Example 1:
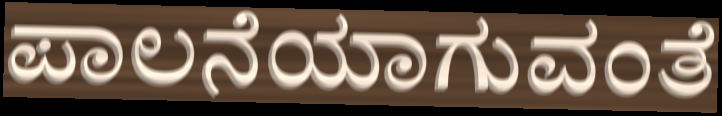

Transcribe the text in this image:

ಪಾಲನೆಯಾಗುವಂತೆ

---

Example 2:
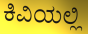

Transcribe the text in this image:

ಕಿವಿಯಲ್ಲಿ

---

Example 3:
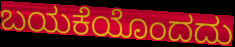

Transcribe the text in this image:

ಬಯಕೆಯೊಂದದು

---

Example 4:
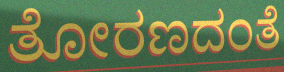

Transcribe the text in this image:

ತೋರಣದಂತೆ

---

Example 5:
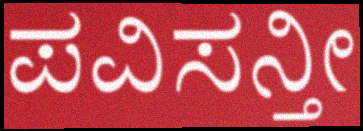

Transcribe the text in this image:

ಪವಿಸನ್ತೀ